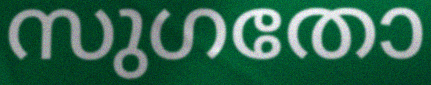
സുഗതോ